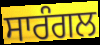
ਸਾਰੰਗਲ